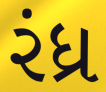
રંધ્ર